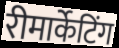
रीमार्केटिंग